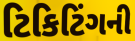
ટિકિટિંગની